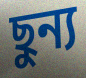
ছুন্য